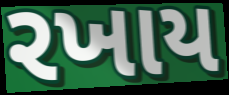
રખાય